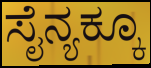
ಸೈನ್ಯಕ್ಕೂ